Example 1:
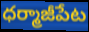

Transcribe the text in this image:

ధర్మాజీపేట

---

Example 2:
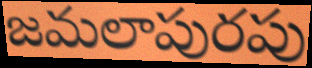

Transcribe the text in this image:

జమలాపురపు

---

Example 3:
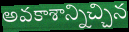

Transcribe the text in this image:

అవకాశాన్నిచ్చిన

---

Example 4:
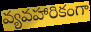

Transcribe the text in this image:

వ్యవహారికంగా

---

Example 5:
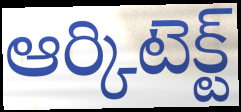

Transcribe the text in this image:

ఆర్కిటెక్ట్